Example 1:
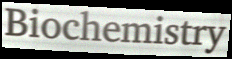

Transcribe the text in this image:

Biochemistry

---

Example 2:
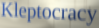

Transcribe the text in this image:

Kleptocracy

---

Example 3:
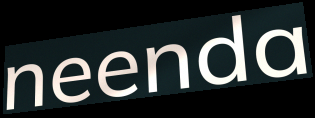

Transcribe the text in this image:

neenda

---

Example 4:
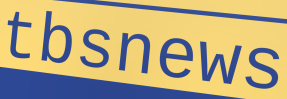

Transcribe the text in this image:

tbsnews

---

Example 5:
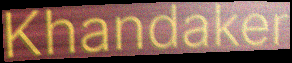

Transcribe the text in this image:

Khandaker